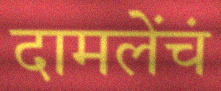
दामलेंचं